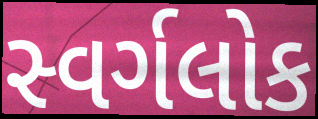
સ્વર્ગલોક